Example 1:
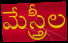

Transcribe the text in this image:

మేస్త్రీల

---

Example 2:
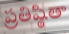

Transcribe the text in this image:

ప్రతిష్ఠితా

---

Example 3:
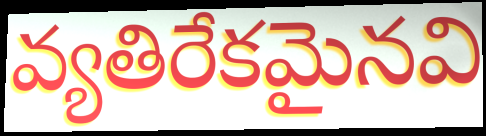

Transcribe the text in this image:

వ్యతిరేకమైనవి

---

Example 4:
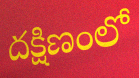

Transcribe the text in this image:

దక్షిణంలో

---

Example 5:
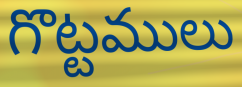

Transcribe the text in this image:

గొట్టములు